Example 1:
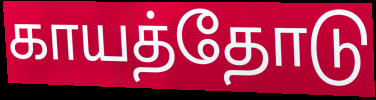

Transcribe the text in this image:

காயத்தோடு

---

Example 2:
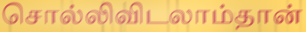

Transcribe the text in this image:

சொல்லிவிடலாம்தான்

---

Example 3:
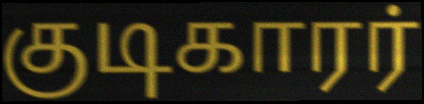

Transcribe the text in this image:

குடிகாரர்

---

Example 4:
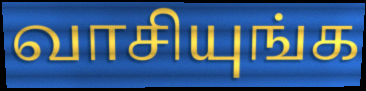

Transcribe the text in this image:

வாசியுங்க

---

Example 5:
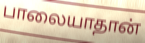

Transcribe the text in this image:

பாலையாதான்